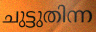
ചുട്ടുതിന്ന